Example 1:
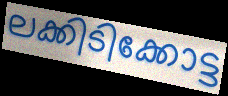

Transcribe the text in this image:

ലക്കിടിക്കോട്ട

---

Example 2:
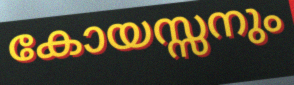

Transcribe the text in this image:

കോയസ്സനും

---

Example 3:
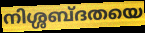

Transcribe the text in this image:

നിശ്ശബ്ദതയെ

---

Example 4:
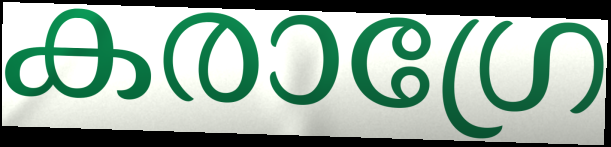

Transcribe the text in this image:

കരാഗ്രേ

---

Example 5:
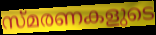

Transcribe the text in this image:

സ്മരണകളുടെ